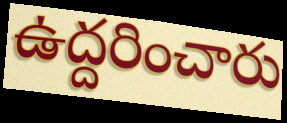
ఉద్దరించారు